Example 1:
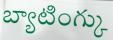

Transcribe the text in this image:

బ్యాటింగ్కు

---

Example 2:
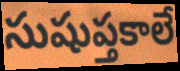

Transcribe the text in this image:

సుషుప్తకాలే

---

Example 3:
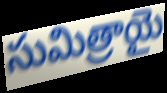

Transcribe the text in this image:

సుమిత్రాయై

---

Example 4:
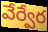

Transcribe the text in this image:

వేర్వేర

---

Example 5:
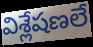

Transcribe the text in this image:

విశ్లేషణలే